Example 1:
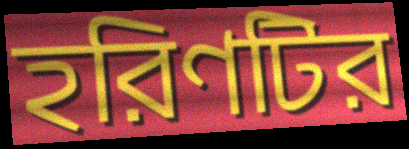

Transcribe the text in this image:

হরিণটির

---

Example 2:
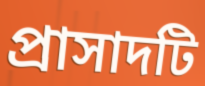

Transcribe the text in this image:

প্রাসাদটি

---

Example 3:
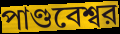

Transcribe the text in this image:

পাণ্ডবেশ্বর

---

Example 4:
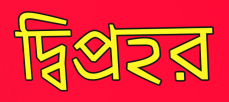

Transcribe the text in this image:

দ্বিপ্রহর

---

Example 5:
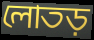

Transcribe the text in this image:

লোতড়